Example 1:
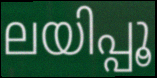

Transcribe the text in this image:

ലയിപ്പൂ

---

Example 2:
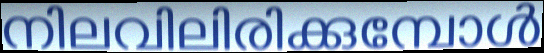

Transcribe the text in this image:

നിലവിലിരിക്കുമ്പോൾ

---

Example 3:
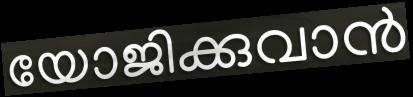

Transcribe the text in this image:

യോജിക്കുവാൻ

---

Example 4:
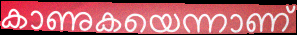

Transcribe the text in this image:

കാണുകയെന്നാണ്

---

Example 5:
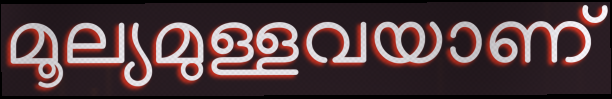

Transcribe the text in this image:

മൂല്യമുള്ളവയാണ്